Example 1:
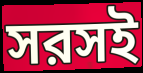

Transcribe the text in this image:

সরসই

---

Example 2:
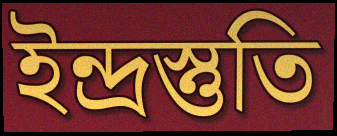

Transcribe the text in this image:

ইন্দ্রস্তুতি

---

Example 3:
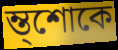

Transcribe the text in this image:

ম্ত্শোকে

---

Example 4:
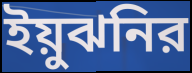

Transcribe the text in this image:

ইয়ুঝনির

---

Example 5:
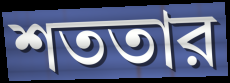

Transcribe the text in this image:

শততার